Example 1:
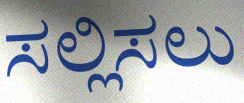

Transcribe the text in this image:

ಸಲ್ಲಿಸಲು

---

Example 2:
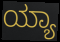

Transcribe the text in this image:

ಯ್ಯಾ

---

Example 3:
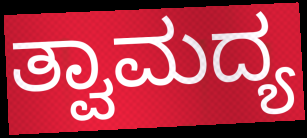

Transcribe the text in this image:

ತ್ವಾಮದ್ಯ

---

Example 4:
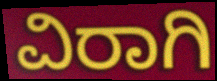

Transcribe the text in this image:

ವಿರಾಗಿ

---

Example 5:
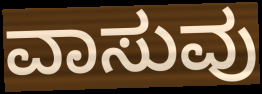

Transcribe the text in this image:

ವಾಸುವು